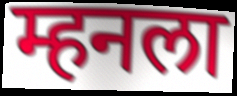
म्हनला